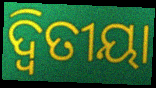
ଦ୍ବିତୀୟା